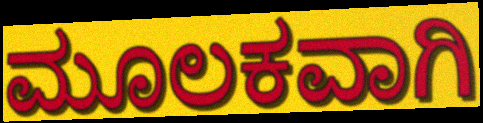
ಮೂಲಕವಾಗಿ